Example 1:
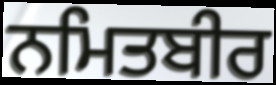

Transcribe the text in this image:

ਨਮਿਤਬੀਰ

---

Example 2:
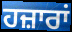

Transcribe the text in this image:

ਹਜ਼ਾਰਾਂ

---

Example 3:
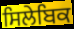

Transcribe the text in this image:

ਸਿਲੇਬਿਕ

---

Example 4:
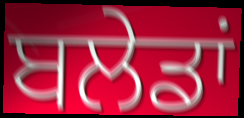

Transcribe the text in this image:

ਬਲੇਡਾਂ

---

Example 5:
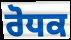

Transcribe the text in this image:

ਰੋਧਕ